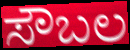
ಸೌಬಲ